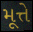
મૂત્તે